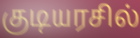
குடியரசில்